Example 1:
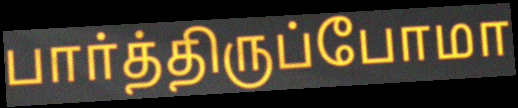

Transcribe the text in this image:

பார்த்திருப்போமா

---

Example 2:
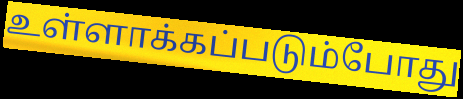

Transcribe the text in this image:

உள்ளாக்கப்படும்போது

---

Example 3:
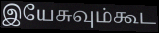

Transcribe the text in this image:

இயேசுவும்கூட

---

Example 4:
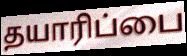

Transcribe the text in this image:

தயாரிப்பை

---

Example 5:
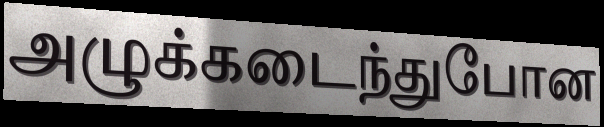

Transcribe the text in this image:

அழுக்கடைந்துபோன